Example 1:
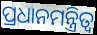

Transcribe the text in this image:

ପ୍ରଧାନମନ୍ତ୍ରିତ୍ଵ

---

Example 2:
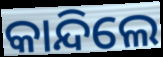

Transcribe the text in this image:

କାନ୍ଦିଲେ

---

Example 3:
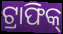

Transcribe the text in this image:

ଟ୍ରାଫିକ୍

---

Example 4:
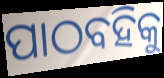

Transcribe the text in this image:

ପାଠବହିକୁ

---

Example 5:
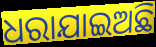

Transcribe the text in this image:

ଧରାଯାଇଅଛି